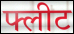
फ्लीट